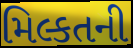
મિલ્કતની